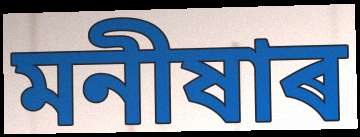
মনীষাৰ